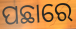
ପଛାରେ